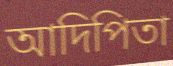
আদিপিতা